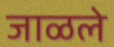
जाळले